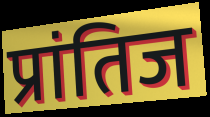
प्रांतिज